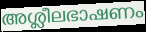
അശ്ലീലഭാഷണം